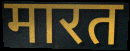
मारत